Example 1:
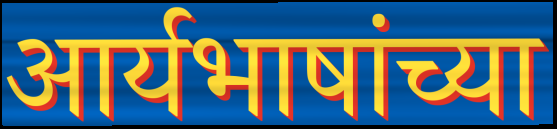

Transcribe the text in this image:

आर्यभाषांच्या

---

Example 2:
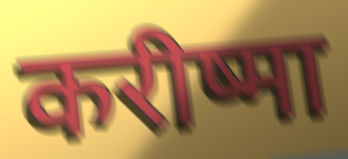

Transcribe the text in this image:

करीष्मा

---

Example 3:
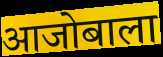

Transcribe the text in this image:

आजोबाला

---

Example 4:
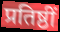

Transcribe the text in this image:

प्रतिष्ठीं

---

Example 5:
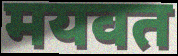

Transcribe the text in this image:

मयवत